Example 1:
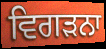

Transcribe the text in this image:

ਵਿਗੜਨਾ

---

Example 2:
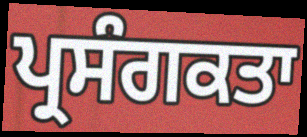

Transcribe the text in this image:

ਪ੍ਰਸੰਗਕਤਾ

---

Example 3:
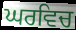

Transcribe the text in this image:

ਘਰਵਿਚ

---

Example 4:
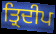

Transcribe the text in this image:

ਤ੍ਰਿਦੀਪ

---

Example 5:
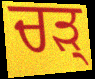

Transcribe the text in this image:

ਚੜ੍